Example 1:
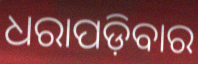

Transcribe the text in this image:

ଧରାପଡ଼ିବାର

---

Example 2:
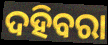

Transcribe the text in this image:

ଦହିବରା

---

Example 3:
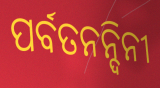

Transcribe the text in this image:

ପର୍ବତନନ୍ଦିନୀ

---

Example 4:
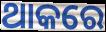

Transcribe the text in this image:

ଥାକରେ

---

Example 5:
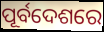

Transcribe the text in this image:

ପୂର୍ବଦେଶରେ